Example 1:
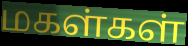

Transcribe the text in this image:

மகள்கள்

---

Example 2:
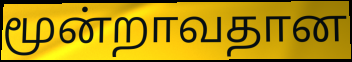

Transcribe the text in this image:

மூன்றாவதான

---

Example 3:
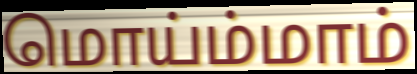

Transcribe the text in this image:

மொய்ம்மாம்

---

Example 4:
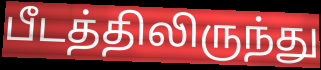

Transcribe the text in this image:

பீடத்திலிருந்து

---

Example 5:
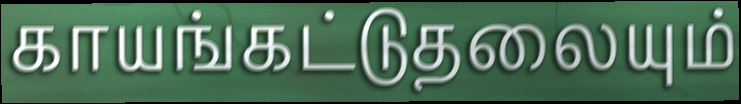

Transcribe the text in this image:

காயங்கட்டுதலையும்